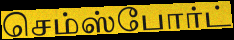
செம்ஸ்போர்ட்